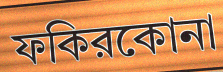
ফকিরকোনা